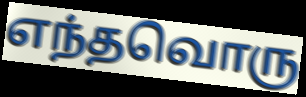
எந்தவொரு